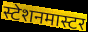
स्टेशनमास्टर